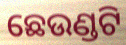
ଛେଉଣ୍ଡଟି